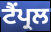
ਟੈਂਪ੍ਰਲ